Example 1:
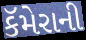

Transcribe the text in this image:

કૅમેરાની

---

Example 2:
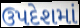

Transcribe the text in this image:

ઉપદેશમાં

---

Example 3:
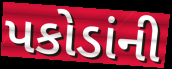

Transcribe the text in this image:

પકોડાંની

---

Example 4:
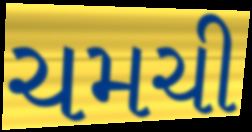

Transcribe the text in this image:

ચમચી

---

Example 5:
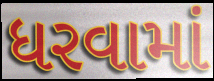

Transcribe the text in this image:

ધરવામાં